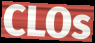
CLOs